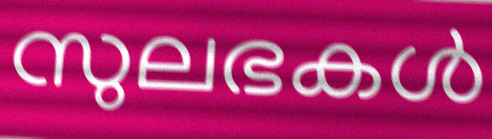
സുലഭകൾ